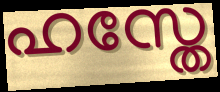
ഹസ്തേ